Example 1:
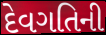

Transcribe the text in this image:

દેવગતિની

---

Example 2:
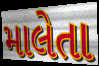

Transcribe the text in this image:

માલેતા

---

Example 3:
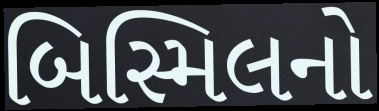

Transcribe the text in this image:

બિસ્મિલનો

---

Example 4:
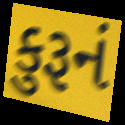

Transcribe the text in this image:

કુરૂનં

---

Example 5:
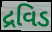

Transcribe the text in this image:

દ્રવિડ